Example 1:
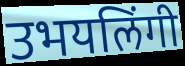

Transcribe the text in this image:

उभयलिंगी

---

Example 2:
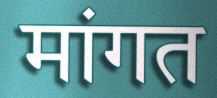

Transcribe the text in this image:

मांगत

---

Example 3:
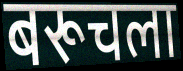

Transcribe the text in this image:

बरूचला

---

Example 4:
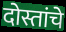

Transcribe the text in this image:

दोस्तांचे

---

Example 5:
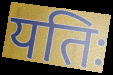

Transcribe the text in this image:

यतिः